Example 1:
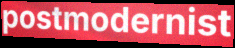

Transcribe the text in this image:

postmodernist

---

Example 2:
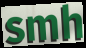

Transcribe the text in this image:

smh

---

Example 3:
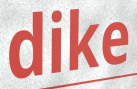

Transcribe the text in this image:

dike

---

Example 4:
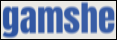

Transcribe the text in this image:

gamshe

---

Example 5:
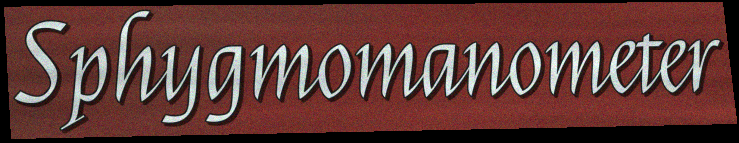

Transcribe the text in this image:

Sphygmomanometer